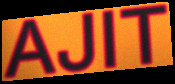
AJIT